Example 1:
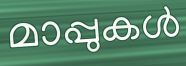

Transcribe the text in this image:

മാപ്പുകൾ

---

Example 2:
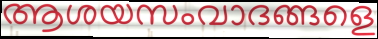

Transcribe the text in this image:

ആശയസംവാദങ്ങളെ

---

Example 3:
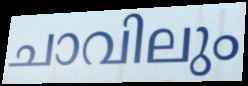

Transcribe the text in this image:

ചാവിലും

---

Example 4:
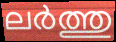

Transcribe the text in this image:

ലർത്തു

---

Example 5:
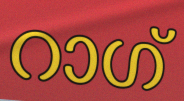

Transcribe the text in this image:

റാഗ്